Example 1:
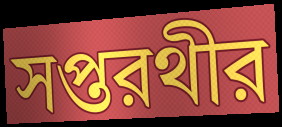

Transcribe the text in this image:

সপ্তরথীর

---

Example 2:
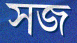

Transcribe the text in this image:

সজ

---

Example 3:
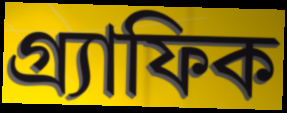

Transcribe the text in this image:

গ্র্যাফিক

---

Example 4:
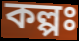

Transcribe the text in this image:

কল্পঃ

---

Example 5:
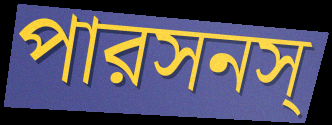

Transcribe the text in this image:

পারসনস্